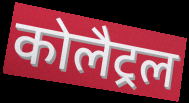
कोलैट्रल